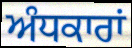
ਅੰਧਕਾਰਾਂ